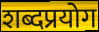
शब्दप्रयोग